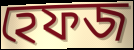
হেফজ